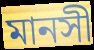
মানসী